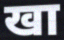
खा